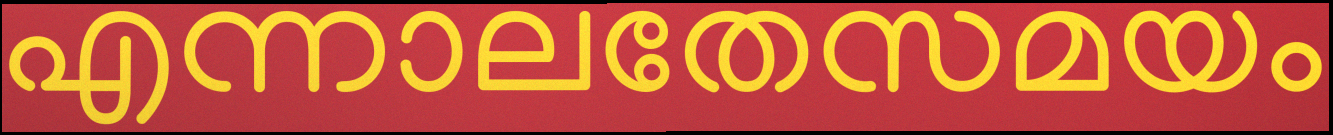
എന്നാലതേസമയം